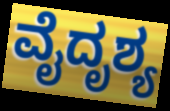
ವೈದೃಶ್ಯ